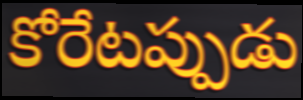
కోరేటప్పుడు